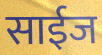
साईज